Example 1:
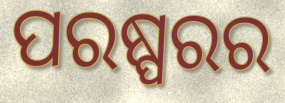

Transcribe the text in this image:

ପରଷ୍ପରର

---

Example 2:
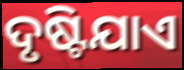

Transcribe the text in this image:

ଦୃଷ୍ଟିଯାଏ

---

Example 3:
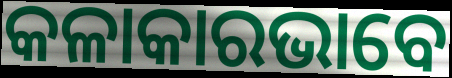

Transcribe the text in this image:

କଳାକାରଭାବେ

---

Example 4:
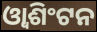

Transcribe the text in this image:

ଓ୍ୱାଶିଂଟନ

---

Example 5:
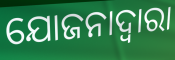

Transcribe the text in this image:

ଯୋଜନାଦ୍ୱାରା